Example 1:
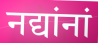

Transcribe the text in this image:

नद्यांनां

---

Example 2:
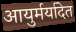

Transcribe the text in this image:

आयुर्मर्यादेत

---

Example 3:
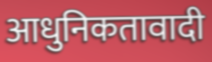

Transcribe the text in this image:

आधुनिकतावादी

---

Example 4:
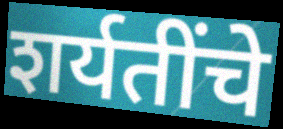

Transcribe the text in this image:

शर्यतींचे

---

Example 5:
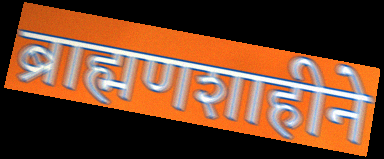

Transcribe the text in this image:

ब्राह्मणशाहीने